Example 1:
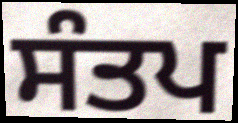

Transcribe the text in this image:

ਸੰਤਪ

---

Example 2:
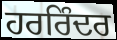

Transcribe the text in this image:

ਹਰਰਿੰਦਰ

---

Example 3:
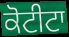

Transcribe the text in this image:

ਕੋਟੀਟਾ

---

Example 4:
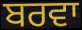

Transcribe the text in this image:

ਬਰਵਾ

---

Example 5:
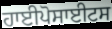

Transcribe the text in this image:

ਹਾਈਪੋਸਾਈਟਸ